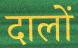
दालों